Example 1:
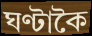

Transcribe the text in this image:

ঘণ্টাকৈ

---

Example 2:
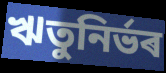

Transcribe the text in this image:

ঋতুনিৰ্ভৰ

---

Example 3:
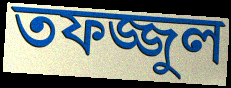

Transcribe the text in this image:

তফজ্জুল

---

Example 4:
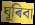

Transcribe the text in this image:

ঘূৰিবা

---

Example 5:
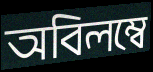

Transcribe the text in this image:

অবিলম্বে